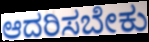
ಆದರಿಸಬೇಕು